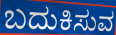
ಬದುಕಿಸುವ